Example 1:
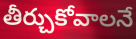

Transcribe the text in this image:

తీర్చుకోవాలనే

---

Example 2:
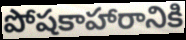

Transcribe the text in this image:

పోషకాహారానికి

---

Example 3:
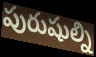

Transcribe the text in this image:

పురుషుల్ని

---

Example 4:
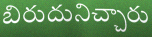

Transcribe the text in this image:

బిరుదునిచ్చారు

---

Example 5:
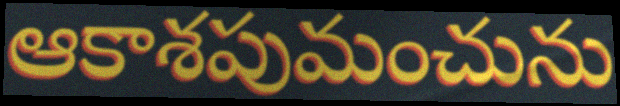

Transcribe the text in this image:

ఆకాశపుమంచును